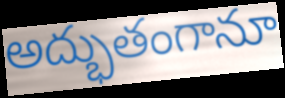
అద్భుతంగానూ